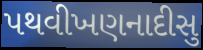
પથવીખણનાદીસુ